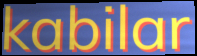
kabilar